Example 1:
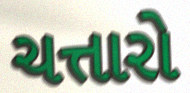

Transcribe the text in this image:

ચત્તારો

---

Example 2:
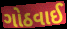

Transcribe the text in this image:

ગોઠવાઈ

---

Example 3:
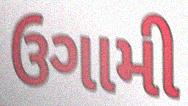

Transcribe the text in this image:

ઉગામી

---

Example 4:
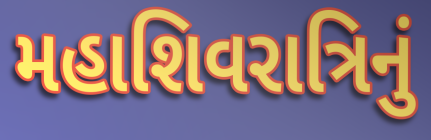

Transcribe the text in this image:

મહાશિવરાત્રિનું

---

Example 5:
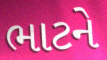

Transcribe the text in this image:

ભાટને